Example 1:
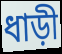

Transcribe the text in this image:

ধাড়ী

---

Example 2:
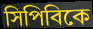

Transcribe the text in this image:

সিপিবিকে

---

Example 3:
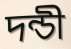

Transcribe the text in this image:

দন্ডী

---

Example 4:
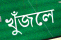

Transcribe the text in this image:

খুঁজলে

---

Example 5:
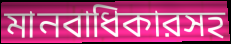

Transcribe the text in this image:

মানবাধিকারসহ